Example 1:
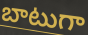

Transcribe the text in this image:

బాటుగా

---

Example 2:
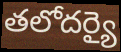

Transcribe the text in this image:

తలోదర్యై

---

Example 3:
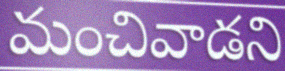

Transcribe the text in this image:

మంచివాడని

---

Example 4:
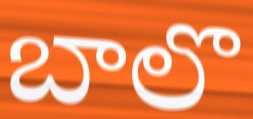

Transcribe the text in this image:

బాలొ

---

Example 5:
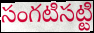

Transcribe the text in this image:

సంగటిసట్టి